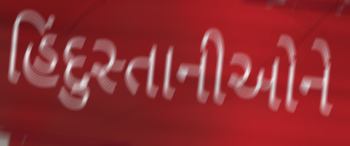
હિંદુસ્તાનીઓને